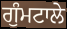
ਗੁੰਮਟਾਲੇ